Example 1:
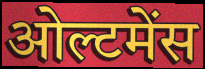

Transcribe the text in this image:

ओल्टमेंस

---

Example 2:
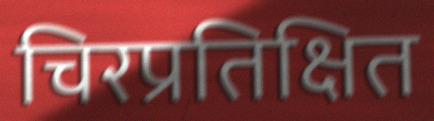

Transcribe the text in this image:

चिरप्रतिक्षित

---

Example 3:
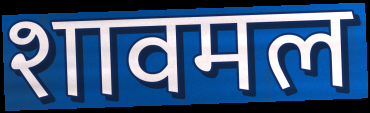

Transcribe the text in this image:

शावमल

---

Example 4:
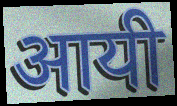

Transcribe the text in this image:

आयी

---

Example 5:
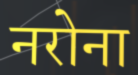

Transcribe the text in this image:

नरोना